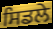
ਸਿਡਲੇ